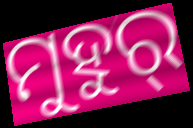
ମୁହୁର୍